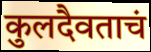
कुलदैवताचं